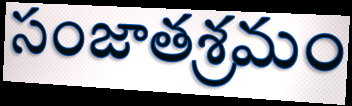
సంజాతశ్రమం